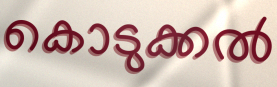
കൊടുക്കൽ